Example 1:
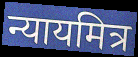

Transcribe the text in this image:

न्यायमित्र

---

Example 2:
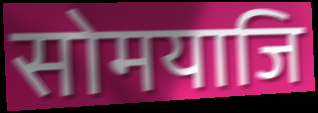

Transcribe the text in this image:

सोमयाजि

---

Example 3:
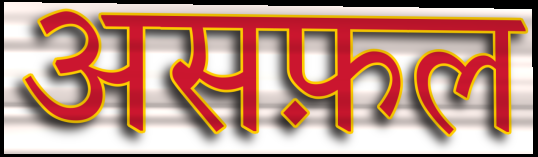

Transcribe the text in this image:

असफ़ल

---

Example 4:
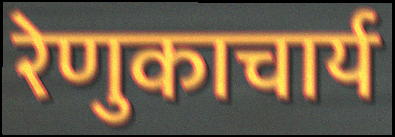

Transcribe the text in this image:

रेणुकाचार्य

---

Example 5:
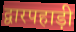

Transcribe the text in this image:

द्वारपहाड़ी